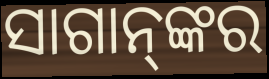
ସାଗାନ୍‌ଙ୍କର